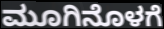
ಮೂಗಿನೊಳಗೆ